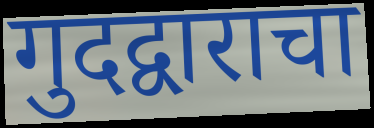
गुदद्वाराचा